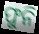
ଫୁନି